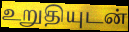
உறுதியுடன்